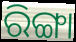
ରିଙ୍ଗା